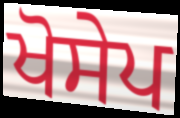
ਖੋਸੇਪ